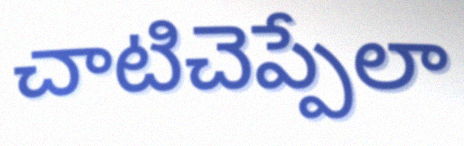
చాటిచెప్పేలా